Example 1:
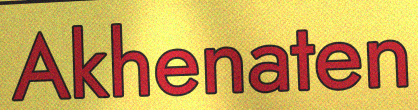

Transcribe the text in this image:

Akhenaten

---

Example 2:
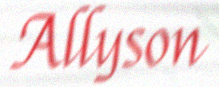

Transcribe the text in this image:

Allyson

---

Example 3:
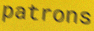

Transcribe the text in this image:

patrons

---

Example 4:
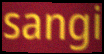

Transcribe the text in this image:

sangi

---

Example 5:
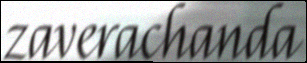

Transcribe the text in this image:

zaverachanda